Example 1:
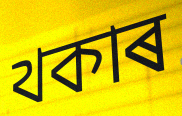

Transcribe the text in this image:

থকাৰ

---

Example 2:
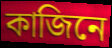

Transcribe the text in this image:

কাজিনে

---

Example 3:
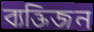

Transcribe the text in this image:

ব্যক্তিজন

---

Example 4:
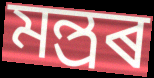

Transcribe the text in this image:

মন্ত্ৰৰ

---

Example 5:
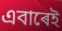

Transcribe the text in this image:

এবাৰেই